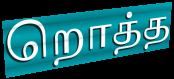
றொத்த